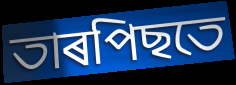
তাৰপিছতে